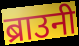
ब्राउनी